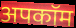
अपकॉम